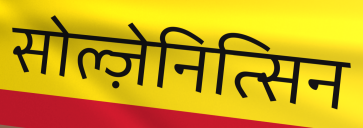
सोल्ज़ेनित्सिन